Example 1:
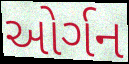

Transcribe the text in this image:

ઓર્ગન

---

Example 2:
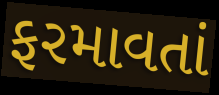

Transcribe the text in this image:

ફરમાવતાં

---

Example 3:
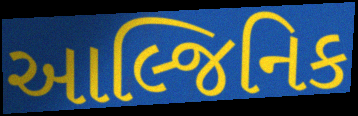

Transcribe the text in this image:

આલ્જિનિક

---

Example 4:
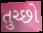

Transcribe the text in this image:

તુચ્છો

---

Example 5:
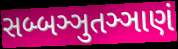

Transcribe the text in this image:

સબ્બઞ્ઞુતઞ્ઞાણં